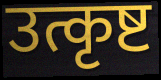
उत्कृष्ट